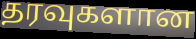
தரவுகளான